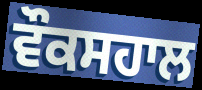
ਵੌਕਸਹਾਲ